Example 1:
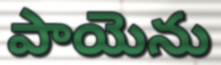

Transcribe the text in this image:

పాయెను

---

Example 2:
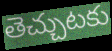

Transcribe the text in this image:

తెచ్చుటకు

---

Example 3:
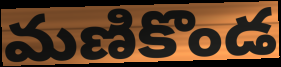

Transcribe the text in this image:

మణికొండ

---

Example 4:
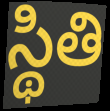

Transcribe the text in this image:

స్థితి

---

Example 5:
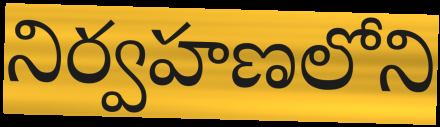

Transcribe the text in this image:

నిర్వహణలోని